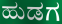
ಹುಡಗ